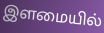
இளமையில்